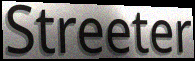
Streeter